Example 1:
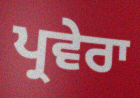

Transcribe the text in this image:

ਪ੍ਰਵੇਰਾ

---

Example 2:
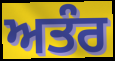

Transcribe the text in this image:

ਅਤੰਰ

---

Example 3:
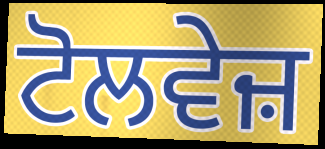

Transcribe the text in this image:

ਟੋਲਵੇਜ਼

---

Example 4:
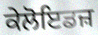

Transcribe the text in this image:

ਕੇਲੋਇਡਜ਼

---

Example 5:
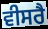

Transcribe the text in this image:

ਵੀਸਰੈ